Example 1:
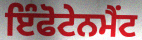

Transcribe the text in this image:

ਇੰਫੋਟੇਨਮੈਂਟ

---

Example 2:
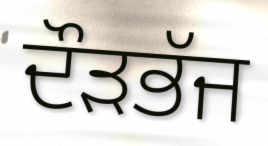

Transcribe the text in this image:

ਦੌੜਭੱਜ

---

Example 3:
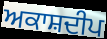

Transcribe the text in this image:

ਅਕਾਸ਼ਦੀਪ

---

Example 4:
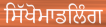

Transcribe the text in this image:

ਸਿੱਖੋਮਾਡਲਿੰਗ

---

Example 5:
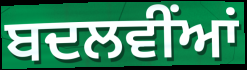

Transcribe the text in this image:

ਬਦਲਵੀਂਆਂ